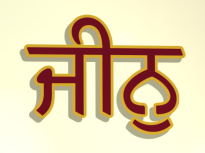
ਜੀਨੁ